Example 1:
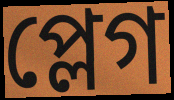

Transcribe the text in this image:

প্লেগ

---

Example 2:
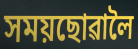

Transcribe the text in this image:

সময়ছোৱালৈ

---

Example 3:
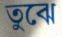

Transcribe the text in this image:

তুঝে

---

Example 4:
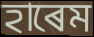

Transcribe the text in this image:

হাৰেম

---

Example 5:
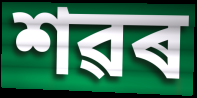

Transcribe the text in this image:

শৱৰ